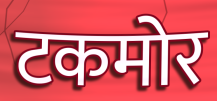
टकमोर